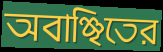
অবাঞ্ছিতের